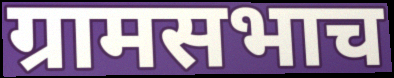
ग्रामसभाच